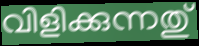
വിളിക്കുന്നതു്